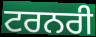
ਟਰਨਰੀ